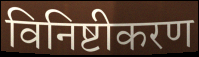
विनिष्टीकरण